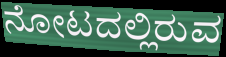
ನೋಟದಲ್ಲಿರುವ